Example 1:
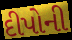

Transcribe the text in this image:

દીપોની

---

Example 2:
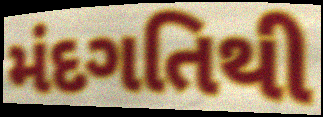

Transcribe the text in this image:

મંદગતિથી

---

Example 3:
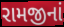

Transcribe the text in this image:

રામજીનાં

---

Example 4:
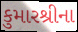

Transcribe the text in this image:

કુમારશ્રીના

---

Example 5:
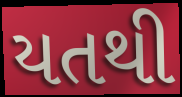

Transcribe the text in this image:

યતથી